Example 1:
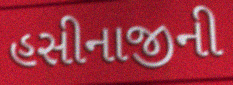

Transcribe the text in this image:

હસીનાજીની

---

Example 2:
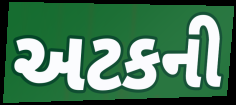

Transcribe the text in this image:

અટકની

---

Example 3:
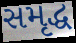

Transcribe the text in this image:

સમૃદ્ધ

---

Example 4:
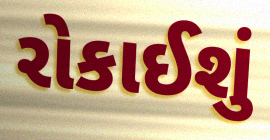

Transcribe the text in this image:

રોકાઈશું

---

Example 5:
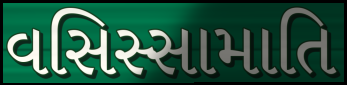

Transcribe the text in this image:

વસિસ્સામાતિ